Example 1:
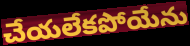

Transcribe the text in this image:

చేయలేకపోయేను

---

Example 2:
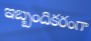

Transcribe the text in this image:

ఇబ్బందికరంగా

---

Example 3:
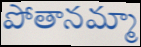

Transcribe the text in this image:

పోతానమ్మా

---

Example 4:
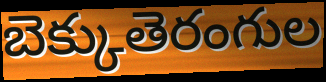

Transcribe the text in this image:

బెక్కుతెరంగుల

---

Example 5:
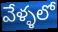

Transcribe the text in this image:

వేళ్ళలో